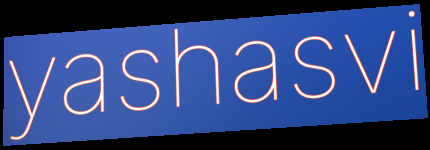
yashasvi